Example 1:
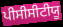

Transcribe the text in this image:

ਪੀਸੀਸੀਟੀਯੂ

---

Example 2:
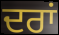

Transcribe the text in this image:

ਦਰਾਂ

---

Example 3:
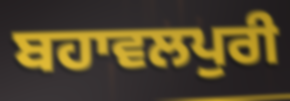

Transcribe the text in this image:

ਬਹਾਵਲਪੁਰੀ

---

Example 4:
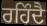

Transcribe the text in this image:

ਰਹਿੰਦੈ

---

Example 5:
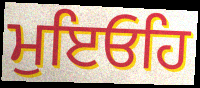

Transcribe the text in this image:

ਮੁਇਓਹਿ